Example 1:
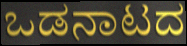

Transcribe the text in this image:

ಒಡನಾಟದ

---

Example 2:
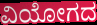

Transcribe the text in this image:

ವಿಯೋಗದ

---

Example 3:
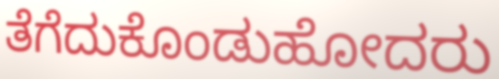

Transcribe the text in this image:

ತೆಗೆದುಕೊಂಡುಹೋದರು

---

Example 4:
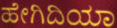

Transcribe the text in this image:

ಹೇಗಿದಿಯಾ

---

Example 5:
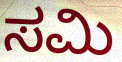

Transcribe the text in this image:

ಸಮಿ